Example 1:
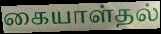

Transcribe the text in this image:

கையாள்தல்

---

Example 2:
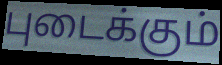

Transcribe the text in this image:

புடைக்கும்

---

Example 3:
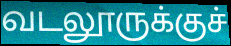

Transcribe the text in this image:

வடலூருக்குச்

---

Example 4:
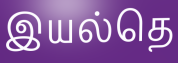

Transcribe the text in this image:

இயல்தெ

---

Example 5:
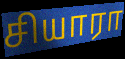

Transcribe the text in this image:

சியாரா